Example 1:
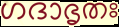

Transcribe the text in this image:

ഗദാഭൃതഃ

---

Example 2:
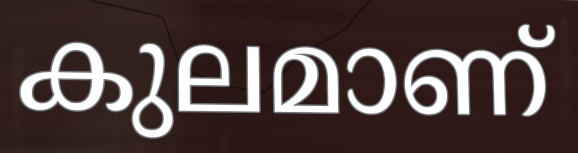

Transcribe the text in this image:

കുലമാണ്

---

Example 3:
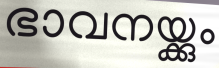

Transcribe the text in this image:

ഭാവനയ്ക്കും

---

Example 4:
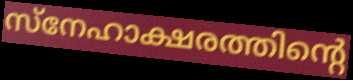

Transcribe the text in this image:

സ്നേഹാക്ഷരത്തിന്റെ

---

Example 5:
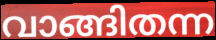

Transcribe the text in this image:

വാങ്ങിതന്ന